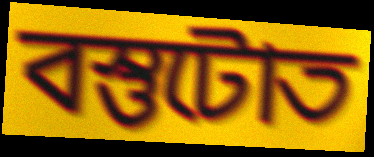
বস্তুটোত